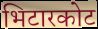
भिटारकोट